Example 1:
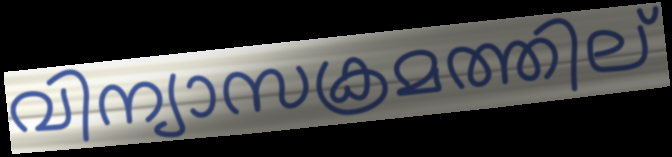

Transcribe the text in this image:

വിന്യാസക്രമത്തില്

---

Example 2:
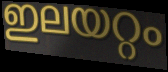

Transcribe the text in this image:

ഇലയറ്റം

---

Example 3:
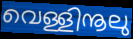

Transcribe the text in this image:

വെള്ളിനൂലു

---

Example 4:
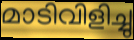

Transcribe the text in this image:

മാടിവിളിച്ചു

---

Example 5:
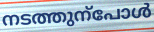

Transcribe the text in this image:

നടത്തുന്പോൾ